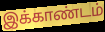
இக்காண்டம்